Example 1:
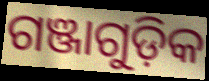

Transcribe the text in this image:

ଗଞ୍ଜାଗୁଡ଼ିକ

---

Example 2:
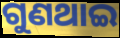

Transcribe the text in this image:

ଗୁଣଥାଇ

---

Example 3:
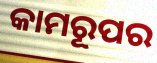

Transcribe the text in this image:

କାମରୂପର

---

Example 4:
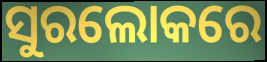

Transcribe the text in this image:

ସୁରଲୋକରେ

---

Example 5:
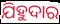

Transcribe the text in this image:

ଯିହୁଦାର